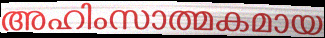
അഹിംസാത്മകമായ